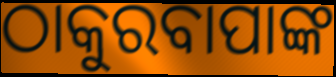
ଠାକୁରବାପାଙ୍କ